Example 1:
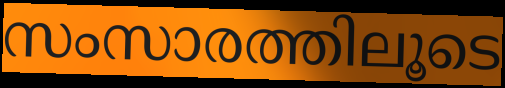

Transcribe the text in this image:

സംസാരത്തിലൂടെ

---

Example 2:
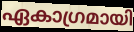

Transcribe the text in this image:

ഏകാഗ്രമായി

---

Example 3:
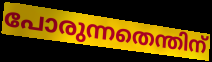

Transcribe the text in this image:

പോരുന്നതെന്തിന്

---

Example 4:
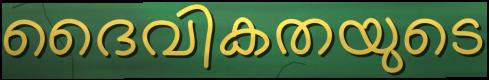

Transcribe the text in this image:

ദൈവികതയുടെ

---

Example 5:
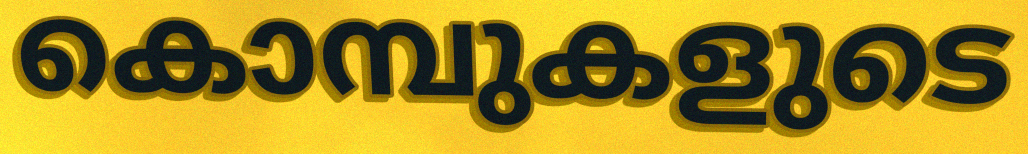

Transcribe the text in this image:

കൊമ്പുകളുടെ